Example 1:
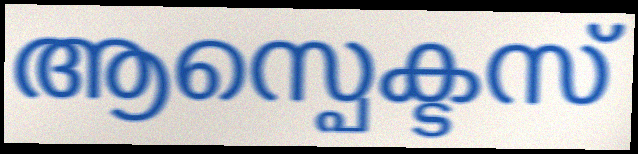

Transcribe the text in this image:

ആസ്പെക്ടസ്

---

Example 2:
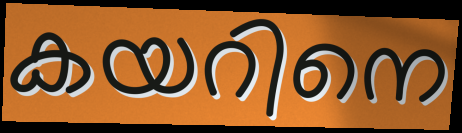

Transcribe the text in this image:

കയറിനെ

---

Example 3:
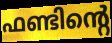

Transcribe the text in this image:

ഫണ്ടിന്റെ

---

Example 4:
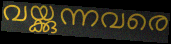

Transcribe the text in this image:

വയ്ക്കുന്നവരെ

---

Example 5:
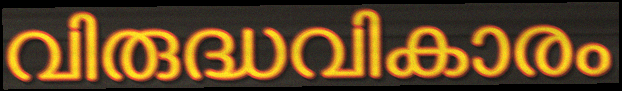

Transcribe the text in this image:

വിരുദ്ധവികാരം